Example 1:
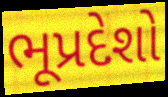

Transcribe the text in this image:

ભૂપ્રદેશો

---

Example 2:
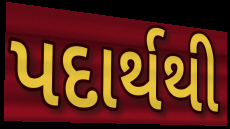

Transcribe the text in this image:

પદાર્થથી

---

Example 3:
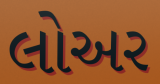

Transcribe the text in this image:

લોઅર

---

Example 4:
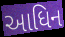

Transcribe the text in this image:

આધિન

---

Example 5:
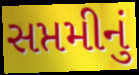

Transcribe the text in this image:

સપ્તમીનું